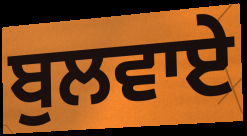
ਬੁਲਵਾਏ